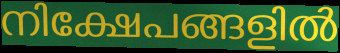
നിക്ഷേപങ്ങളിൽ